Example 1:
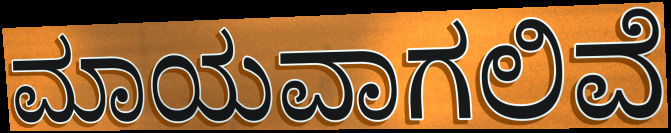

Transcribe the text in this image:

ಮಾಯವಾಗಲಿವೆ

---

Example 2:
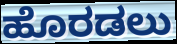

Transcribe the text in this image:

ಹೊರಡಲು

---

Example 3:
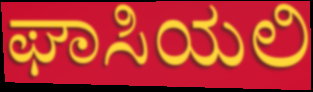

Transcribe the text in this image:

ಘಾಸಿಯಲಿ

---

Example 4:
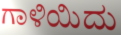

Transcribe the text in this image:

ಗಾಳಿಯಿದು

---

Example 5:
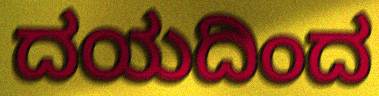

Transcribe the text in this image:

ದಯದಿಂದ